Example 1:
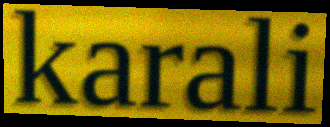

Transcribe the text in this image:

karali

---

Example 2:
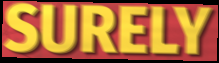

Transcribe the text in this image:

SURELY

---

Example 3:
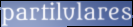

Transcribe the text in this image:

partilulares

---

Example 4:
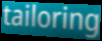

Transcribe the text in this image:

tailoring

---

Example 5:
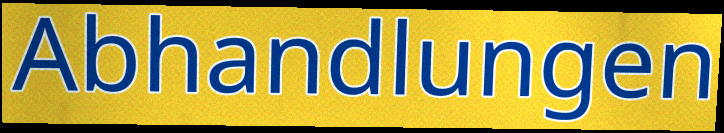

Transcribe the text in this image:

Abhandlungen